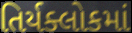
તિર્યક્લોકમાં